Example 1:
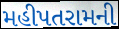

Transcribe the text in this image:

મહીપતરામની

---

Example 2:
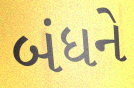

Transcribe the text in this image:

બંધને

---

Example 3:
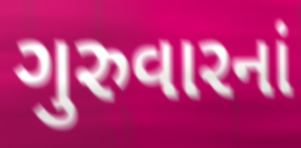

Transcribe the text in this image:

ગુરુવારનાં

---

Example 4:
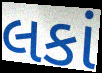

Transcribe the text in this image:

લકાં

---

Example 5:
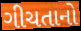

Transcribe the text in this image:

ગીચતાનો